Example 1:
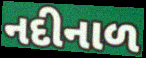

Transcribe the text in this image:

નદીનાળ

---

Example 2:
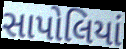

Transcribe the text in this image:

સાપોલિયાં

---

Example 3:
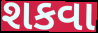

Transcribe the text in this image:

શકવા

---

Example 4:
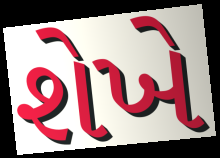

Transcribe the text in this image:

શેખે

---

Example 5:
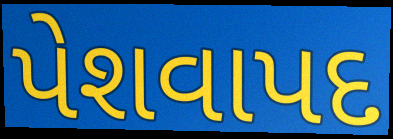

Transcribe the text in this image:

પેશવાપદ